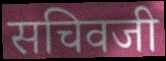
सचिवजी